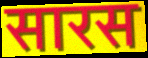
सारस